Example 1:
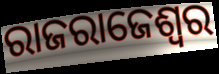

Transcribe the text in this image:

ରାଜରାଜେଶ୍ଵର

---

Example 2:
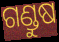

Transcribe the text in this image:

ଗଣ୍ଡୁଷ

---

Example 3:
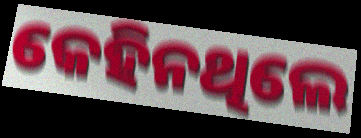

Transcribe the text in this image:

କେହିନଥିଲେ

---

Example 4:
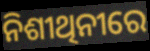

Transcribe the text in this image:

ନିଶୀଥିନୀରେ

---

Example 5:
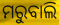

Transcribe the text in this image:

ମରୁବାଲି